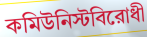
কমিউনিস্টবিরোধী